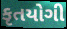
કૃતયોગી